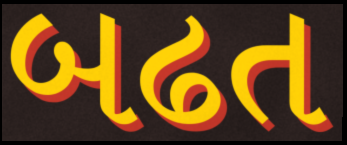
બઢત